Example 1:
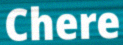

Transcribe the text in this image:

Chere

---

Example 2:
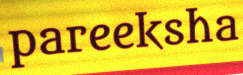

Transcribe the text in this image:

pareeksha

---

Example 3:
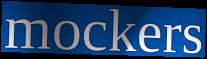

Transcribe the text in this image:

mockers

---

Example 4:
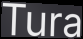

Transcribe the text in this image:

Tura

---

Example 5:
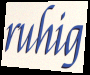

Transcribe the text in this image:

ruhig